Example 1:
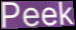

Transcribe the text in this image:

Peek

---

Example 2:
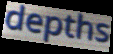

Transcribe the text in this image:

depths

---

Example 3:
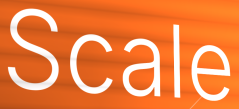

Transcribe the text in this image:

Scale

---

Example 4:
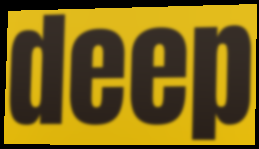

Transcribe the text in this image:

deep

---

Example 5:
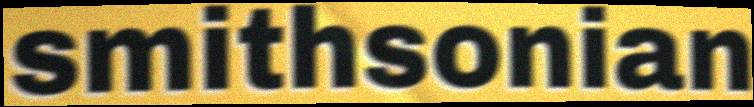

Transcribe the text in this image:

smithsonian